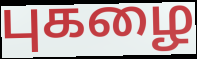
புகழை